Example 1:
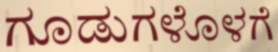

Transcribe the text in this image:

ಗೂಡುಗಳೊಳಗೆ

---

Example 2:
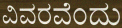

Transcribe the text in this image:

ವಿವರವೆಂದು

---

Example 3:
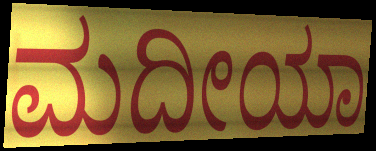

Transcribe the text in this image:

ಮದೀಯಾ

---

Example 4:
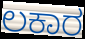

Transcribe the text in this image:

ಲಕಾರ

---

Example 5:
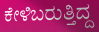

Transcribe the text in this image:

ಕೇಳಿಬರುತ್ತಿದ್ದ